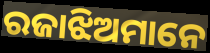
ରଜାଝିଅମାନେ